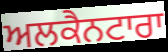
ਅਲਕੈਨਟਾਰਾ